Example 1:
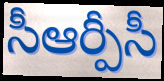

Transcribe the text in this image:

సీఆర్పీసీ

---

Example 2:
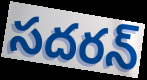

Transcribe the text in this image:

సదరన్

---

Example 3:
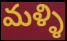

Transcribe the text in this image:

మళ్ళి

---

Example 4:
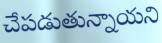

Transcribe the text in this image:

చేపడుతున్నాయని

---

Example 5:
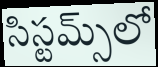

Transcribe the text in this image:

సిస్టమ్స్‌లో